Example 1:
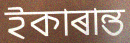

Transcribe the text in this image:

ইকাৰান্ত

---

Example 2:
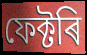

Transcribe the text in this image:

ফেক্টৰি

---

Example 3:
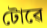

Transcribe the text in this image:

টোৱে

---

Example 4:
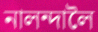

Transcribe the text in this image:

নালন্দালৈ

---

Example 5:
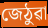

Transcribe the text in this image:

জেঠুৱা